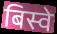
बिस्वे